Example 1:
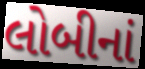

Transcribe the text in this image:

લોબીનાં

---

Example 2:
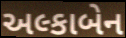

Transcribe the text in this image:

અલ્કાબેન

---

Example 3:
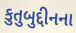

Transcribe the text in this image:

કુતુબુદ્દીનના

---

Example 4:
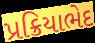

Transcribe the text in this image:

પ્રક્રિયાભેદ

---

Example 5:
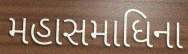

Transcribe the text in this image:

મહાસમાધિના